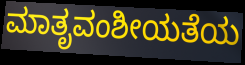
ಮಾತೃವಂಶೀಯತೆಯ